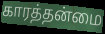
காரத்தன்மை